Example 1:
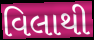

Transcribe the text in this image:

વિલાથી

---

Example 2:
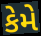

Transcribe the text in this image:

કેમે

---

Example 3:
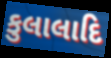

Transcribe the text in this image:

કુલાલાદિ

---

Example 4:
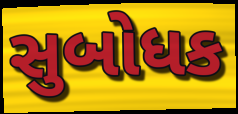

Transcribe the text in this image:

સુબોધક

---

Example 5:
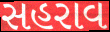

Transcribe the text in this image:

સહરાવ